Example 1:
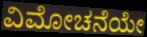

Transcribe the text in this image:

ವಿಮೋಚನೆಯೇ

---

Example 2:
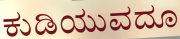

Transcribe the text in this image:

ಕುಡಿಯುವದೂ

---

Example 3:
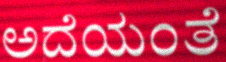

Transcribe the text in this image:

ಅದೆಯಂತೆ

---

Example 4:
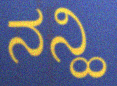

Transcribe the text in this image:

ನನ್ಹಿ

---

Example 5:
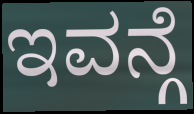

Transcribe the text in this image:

ಇವನ್ಗೆ